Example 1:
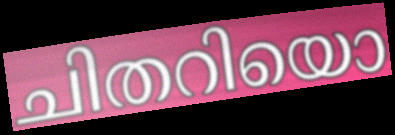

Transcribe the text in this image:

ചിതറിയൊ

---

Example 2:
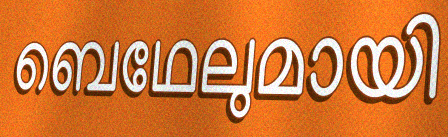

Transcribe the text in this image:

ബെഥേലുമായി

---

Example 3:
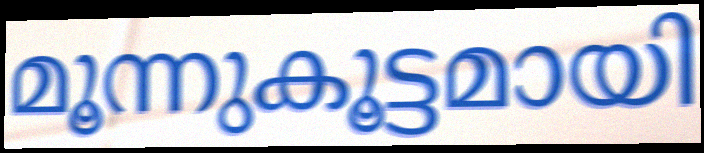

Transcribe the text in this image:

മൂന്നുകൂട്ടമായി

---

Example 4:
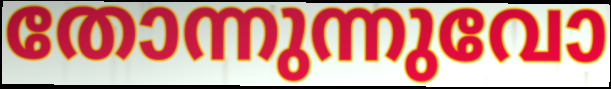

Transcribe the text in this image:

തോന്നുന്നുവോ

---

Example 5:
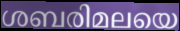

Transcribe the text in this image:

ശബരിമലയെ